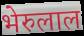
भेरुलाल